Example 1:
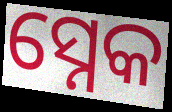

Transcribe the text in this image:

ସ୍ନେକ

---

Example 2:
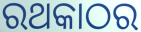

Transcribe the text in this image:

ରଥକାଠର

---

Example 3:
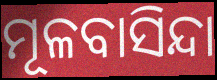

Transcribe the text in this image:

ମୂଳବାସିନ୍ଦା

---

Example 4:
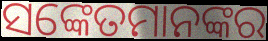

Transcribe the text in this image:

ସଙ୍କେତମାନଙ୍କର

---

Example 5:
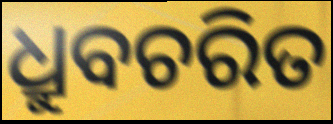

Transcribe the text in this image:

ଧ୍ରୁବଚରିତ